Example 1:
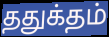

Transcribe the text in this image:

ததுக்தம்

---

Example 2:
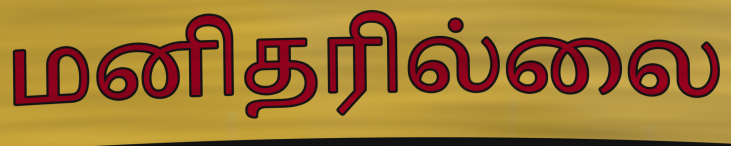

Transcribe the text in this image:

மனிதரில்லை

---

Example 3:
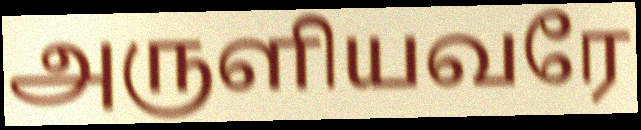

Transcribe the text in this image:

அருளியவரே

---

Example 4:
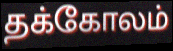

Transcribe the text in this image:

தக்கோலம்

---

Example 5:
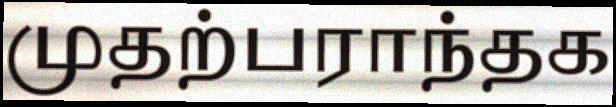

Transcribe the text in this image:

முதற்பராந்தக